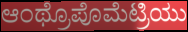
ಆಂಥ್ರೊಪೊಮೆಟ್ರಿಯು